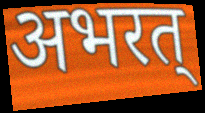
अभरत्